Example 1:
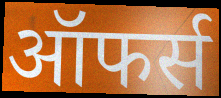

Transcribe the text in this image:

ऑफर्स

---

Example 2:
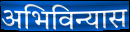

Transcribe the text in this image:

अभिविन्यास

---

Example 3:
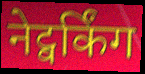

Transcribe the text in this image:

नेट्वर्किंग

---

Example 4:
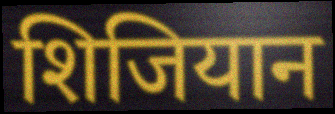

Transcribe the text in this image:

शिजियान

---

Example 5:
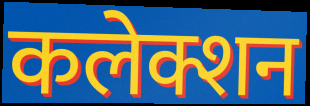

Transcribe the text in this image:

कलेक्शन